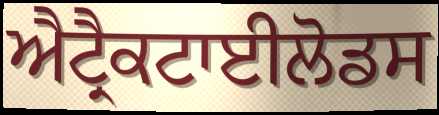
ਐਟ੍ਰੈਕਟਾਈਲੋਡਸ